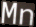
Mn